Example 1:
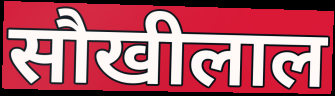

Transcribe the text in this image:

सौखीलाल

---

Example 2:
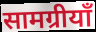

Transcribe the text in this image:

सामग्रीयाँ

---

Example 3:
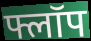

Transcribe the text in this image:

फ्लॉप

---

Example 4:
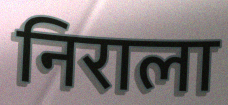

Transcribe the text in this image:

निराला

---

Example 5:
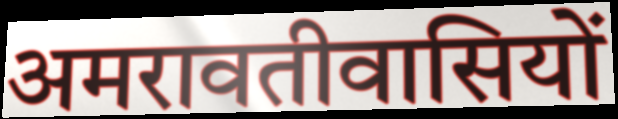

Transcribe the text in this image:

अमरावतीवासियों